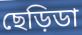
ছেড়িডা